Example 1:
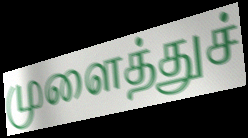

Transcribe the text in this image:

முளைத்துச்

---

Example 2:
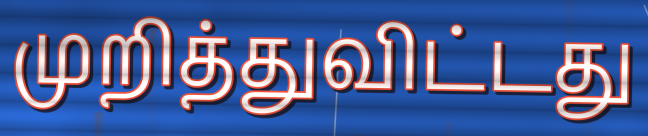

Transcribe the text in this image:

முறித்துவிட்டது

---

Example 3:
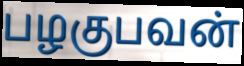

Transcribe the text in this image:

பழகுபவன்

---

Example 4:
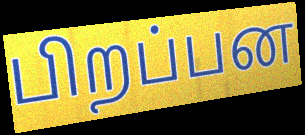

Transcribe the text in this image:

பிறப்பன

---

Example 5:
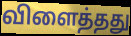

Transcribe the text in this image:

விளைத்தது